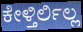
ಕೇಳ್ತಿರ್ಲಿಲ್ಲ